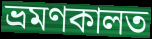
ভ্ৰমণকালত